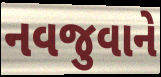
નવજુવાને